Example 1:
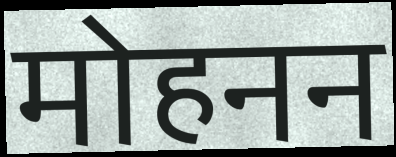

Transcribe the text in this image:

मोहनन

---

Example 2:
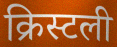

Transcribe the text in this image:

क्रिस्टली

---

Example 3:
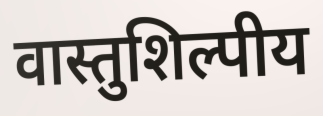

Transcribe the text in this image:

वास्तुशिल्पीय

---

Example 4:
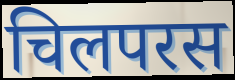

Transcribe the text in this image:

चिलपरस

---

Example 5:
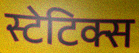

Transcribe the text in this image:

स्टेटिक्स